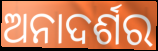
ଅନାଦର୍ଶର